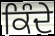
ਕਿੰਦੇ